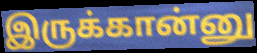
இருக்கான்னு